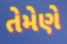
તેમેણે